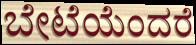
ಬೇಟೆಯೆಂದರೆ